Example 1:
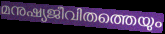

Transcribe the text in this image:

മനുഷ്യജീവിതത്തെയും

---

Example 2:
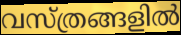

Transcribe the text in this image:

വസ്ത്രങ്ങളിൽ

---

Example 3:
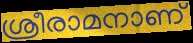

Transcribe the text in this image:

ശ്രീരാമനാണ്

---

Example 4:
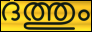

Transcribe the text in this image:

ദത്തും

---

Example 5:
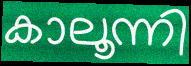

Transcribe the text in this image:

കാലൂന്നി